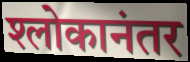
श्लोकानंतर